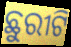
ଛୁରୀଟି